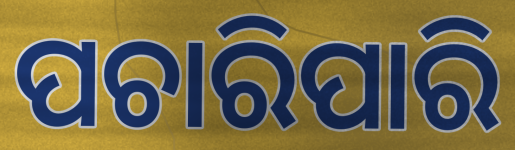
ପଚାରିପାରି